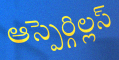
ఆస్పెర్గిల్లస్